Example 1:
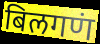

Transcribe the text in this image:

बिलगणं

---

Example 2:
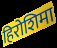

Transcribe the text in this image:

हिरोशिमा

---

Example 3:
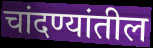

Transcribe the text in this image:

चांदण्यांतील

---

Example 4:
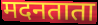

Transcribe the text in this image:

मदनताता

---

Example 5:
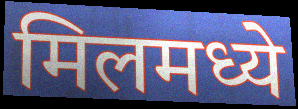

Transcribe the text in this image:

मिलमध्ये